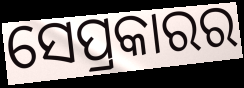
ସେପ୍ରକାରର